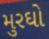
મુરઘો